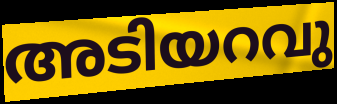
അടിയറവു